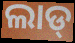
ଲାଡ୍